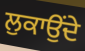
ਲੁਕਾਉਂਦੇ